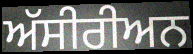
ਅੱਸੀਰੀਅਨ